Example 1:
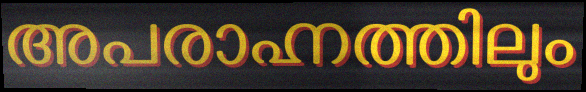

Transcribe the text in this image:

അപരാഹ്നത്തിലും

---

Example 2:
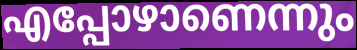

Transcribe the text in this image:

എപ്പോഴാണെന്നും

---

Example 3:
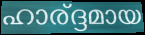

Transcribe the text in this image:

ഹാര്ദ്ദമായ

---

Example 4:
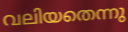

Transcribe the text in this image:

വലിയതെന്നു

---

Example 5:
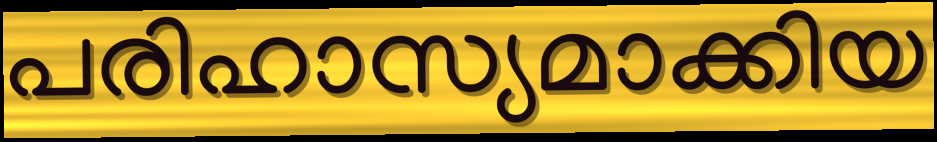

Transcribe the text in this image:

പരിഹാസ്യമാക്കിയ